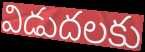
విడుదలకు